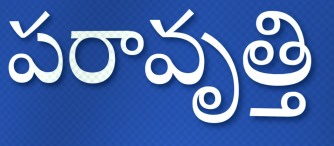
పరావృత్తి